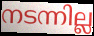
നടന്നില്ല